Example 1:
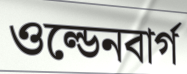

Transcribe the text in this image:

ওল্ডেনবার্গ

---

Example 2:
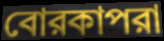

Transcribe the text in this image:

বোরকাপরা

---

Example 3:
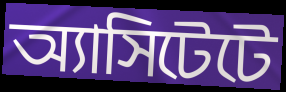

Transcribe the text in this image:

অ্যাসিটেটে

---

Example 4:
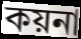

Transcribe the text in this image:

কয়না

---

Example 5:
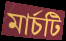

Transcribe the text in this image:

মার্চটি